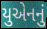
યુએનનું